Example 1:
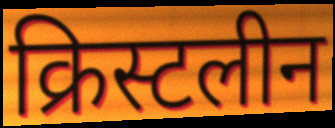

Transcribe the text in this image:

क्रिस्टलीन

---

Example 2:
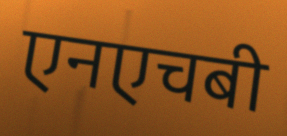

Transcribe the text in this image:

एनएचबी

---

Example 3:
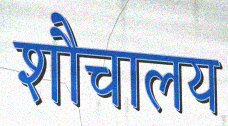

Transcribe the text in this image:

शौचालय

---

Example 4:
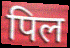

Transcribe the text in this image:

पिल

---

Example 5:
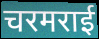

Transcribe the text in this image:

चरमराई